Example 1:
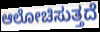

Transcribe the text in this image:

ಆಲೋಚಿಸುತ್ತದೆ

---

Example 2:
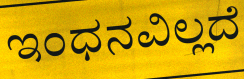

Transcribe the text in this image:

ಇಂಧನವಿಲ್ಲದೆ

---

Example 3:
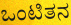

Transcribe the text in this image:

ಒಂಟಿತನ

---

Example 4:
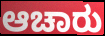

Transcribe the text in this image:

ಆಚಾರು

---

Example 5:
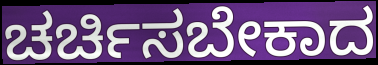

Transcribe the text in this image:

ಚರ್ಚಿಸಬೇಕಾದ